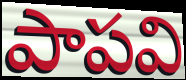
పాపవి